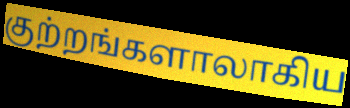
குற்றங்களாலாகிய